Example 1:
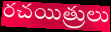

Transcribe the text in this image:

రచయిత్రులు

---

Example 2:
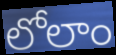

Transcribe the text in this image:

లోలాం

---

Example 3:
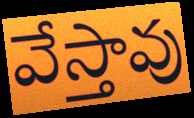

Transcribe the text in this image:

వేస్తావు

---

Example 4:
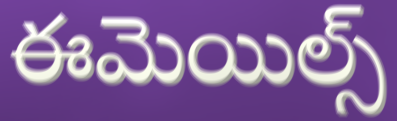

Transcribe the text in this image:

ఈమెయిల్స్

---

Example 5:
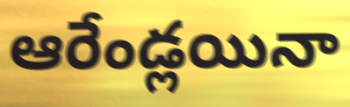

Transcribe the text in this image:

ఆరేండ్లయినా